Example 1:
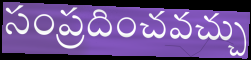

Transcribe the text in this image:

సంప్రదించవచ్చు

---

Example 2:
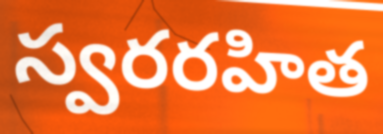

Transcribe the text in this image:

స్వరరహిత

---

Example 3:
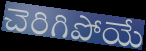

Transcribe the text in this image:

చెరిగిపోయే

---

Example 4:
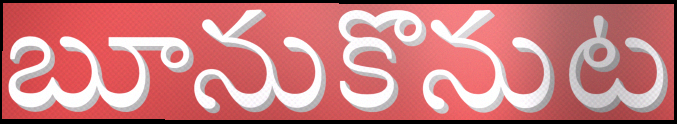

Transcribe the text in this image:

బూనుకొనుట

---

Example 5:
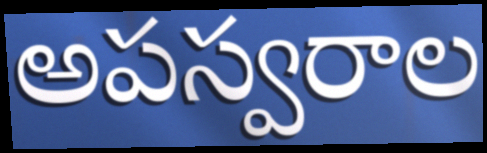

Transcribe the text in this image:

అపస్వరాల